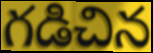
గడిచిన